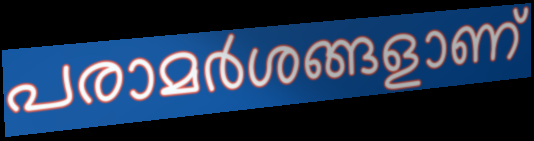
പരാമർശങ്ങളാണ്